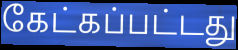
கேட்கப்பட்டது